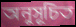
অনুসূচিত